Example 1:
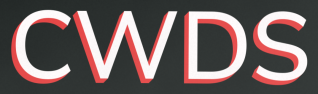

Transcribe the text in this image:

CWDS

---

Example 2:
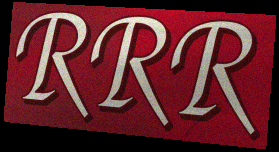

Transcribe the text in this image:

RRR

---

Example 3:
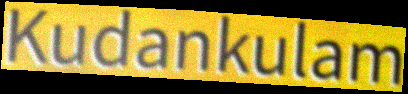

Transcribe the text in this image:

Kudankulam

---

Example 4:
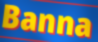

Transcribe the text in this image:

Banna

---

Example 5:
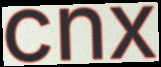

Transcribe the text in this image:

cnx